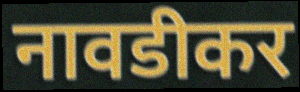
नावडीकर